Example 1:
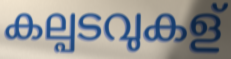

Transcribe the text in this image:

കല്പടവുകള്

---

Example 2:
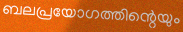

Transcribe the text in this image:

ബലപ്രയോഗത്തിന്റെയും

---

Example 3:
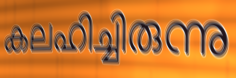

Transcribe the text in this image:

കലഹിച്ചിരുന്നു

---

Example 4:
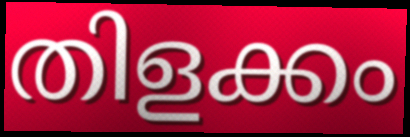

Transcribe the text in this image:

തിളക്കം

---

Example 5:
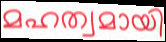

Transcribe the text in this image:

മഹത്വമായി